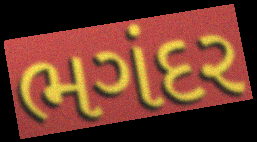
ભગંદર